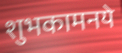
शुभकामनये